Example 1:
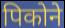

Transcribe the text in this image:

पिकोने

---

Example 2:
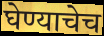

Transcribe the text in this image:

घेण्याचेच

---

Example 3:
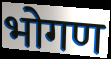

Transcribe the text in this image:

भोगण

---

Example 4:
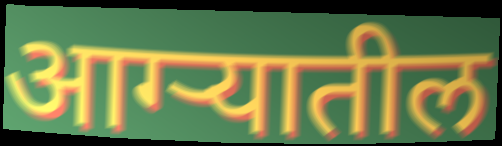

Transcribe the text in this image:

आग्ऱ्यातील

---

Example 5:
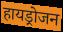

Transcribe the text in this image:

हायड्रोजन